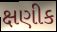
ક્ષણીક